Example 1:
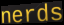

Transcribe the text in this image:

nerds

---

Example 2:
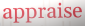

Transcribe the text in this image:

appraise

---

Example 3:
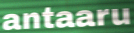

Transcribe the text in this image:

antaaru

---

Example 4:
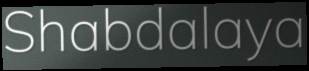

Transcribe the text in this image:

Shabdalaya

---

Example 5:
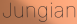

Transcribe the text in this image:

Jungian